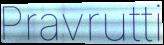
Pravrutti